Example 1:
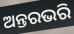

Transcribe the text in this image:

ଅନ୍ତରଭରି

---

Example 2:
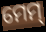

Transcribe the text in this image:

ମେମ୍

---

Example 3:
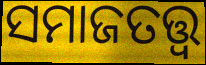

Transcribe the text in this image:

ସମାଜତତ୍ତ୍ବ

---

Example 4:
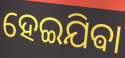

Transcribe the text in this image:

ହେଇଯିଵା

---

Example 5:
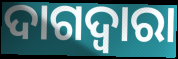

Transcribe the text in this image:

ଦାଗଦ୍ୱାରା